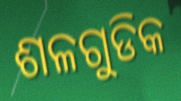
ଶଳଗୁଡିକ